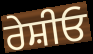
ਰੇਸ਼ੀਓ